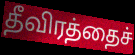
தீவிரத்தைச்